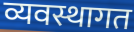
व्यवस्थागत